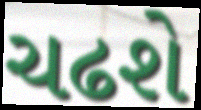
ચઢશે